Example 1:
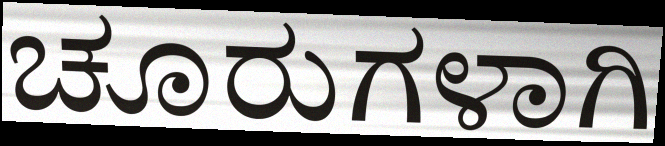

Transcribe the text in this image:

ಚೂರುಗಳಾಗಿ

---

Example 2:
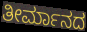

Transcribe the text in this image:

ತೀರ್ಮಾನದ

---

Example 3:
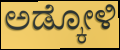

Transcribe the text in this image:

ಅಡ್ಕೋಳಿ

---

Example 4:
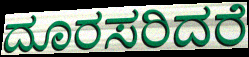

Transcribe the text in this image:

ದೂರಸರಿದರೆ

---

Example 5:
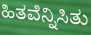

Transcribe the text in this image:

ಹಿತವೆನ್ನಿಸಿತು